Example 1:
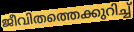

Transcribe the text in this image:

ജീവിതത്തെക്കുറിച്ച്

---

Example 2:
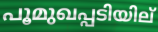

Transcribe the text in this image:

പൂമുഖപ്പടിയില്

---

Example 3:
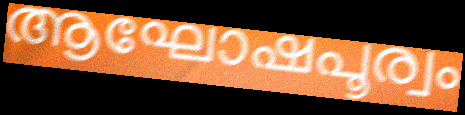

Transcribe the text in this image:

ആഘോഷപൂര്വം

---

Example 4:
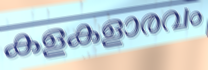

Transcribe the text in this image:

കളകളാരവം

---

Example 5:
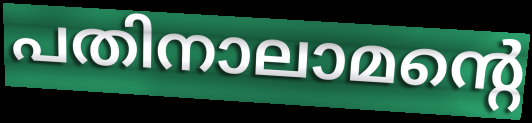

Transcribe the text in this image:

പതിനാലാമന്റെ